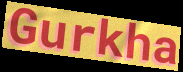
Gurkha